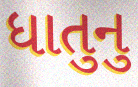
ધાતુનુ